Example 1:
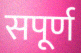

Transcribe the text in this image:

सपूर्ण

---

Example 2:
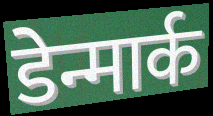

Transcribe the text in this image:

डेन्मार्क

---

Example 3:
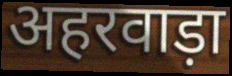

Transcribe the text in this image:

अहरवाड़ा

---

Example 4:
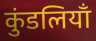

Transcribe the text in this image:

कुंडलियाँ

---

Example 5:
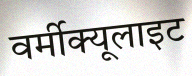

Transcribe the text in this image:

वर्मीक्यूलाइट